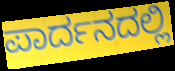
ಪಾರ್ದನದಲ್ಲಿ